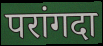
परांगदा